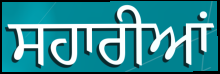
ਸਹਾਰੀਆਂ